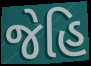
જેહિ